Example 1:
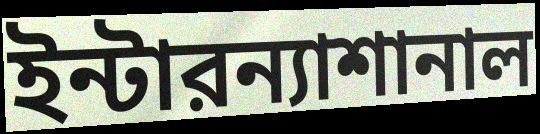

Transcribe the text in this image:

ইন্টারন্যাশানাল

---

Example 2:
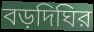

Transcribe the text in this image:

বড়দিঘির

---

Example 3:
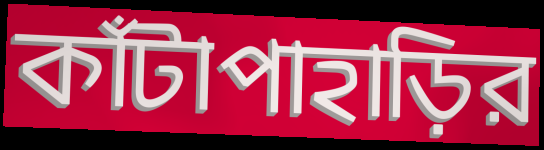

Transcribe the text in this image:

কাঁটাপাহাড়ির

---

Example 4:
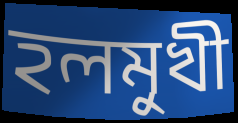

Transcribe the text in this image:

হলমুখী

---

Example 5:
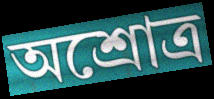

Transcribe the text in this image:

অশ্রোত্র